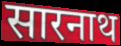
सारनाथ